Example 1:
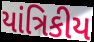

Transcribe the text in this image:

યાંત્રિકીય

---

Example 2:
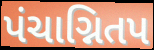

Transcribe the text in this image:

પંચાગ્નિતપ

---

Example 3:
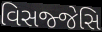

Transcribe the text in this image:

વિસજ્જેસિ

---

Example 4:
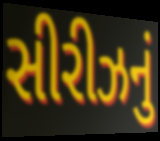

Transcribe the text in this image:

સીરીઝનું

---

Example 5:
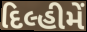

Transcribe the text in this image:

દિલ્હીમેં